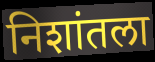
निशांतला